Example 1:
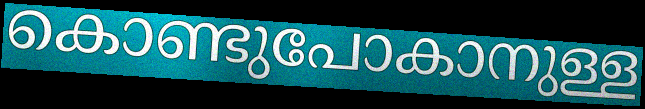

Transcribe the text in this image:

കൊണ്ടുപോകാനുള്ള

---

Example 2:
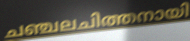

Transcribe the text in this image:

ചഞ്ചലചിത്തനായി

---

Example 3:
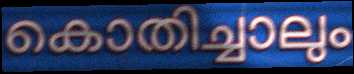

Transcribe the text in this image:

കൊതിച്ചാലും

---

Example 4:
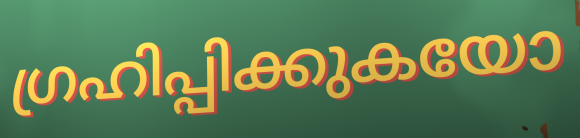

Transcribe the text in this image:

ഗ്രഹിപ്പിക്കുകയോ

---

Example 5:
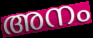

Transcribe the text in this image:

അനം